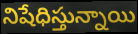
నిషేధిస్తున్నాయి